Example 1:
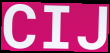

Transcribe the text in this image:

CIJ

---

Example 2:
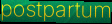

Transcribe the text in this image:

postpartum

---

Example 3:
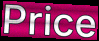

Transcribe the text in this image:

Price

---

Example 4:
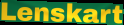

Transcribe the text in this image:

Lenskart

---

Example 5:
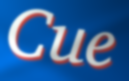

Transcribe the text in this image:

Cue